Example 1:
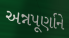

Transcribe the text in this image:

અન્નપૂર્ણાને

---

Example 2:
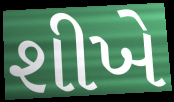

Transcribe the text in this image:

શીખે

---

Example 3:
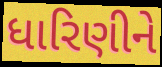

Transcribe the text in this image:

ધારિણીને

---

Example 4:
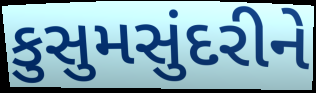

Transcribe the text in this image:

કુસુમસુંદરીને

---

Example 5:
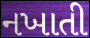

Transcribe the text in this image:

નખાતી